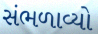
સંભળાવ્યો